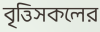
বৃত্তিসকলের